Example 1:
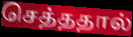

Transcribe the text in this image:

செத்ததால்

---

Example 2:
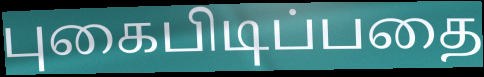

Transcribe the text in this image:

புகைபிடிப்பதை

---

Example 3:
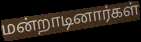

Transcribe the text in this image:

மன்றாடினார்கள்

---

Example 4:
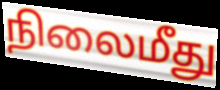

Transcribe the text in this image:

நிலைமீது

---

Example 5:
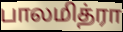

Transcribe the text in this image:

பாலமித்ரா